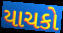
યાચકો